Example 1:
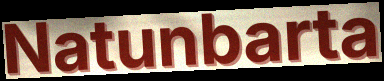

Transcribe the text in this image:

Natunbarta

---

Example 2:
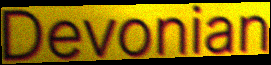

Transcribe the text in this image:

Devonian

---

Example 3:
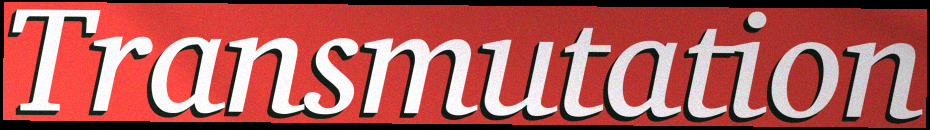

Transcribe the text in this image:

Transmutation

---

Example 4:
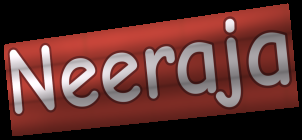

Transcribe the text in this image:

Neeraja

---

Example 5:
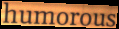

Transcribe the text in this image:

humorous